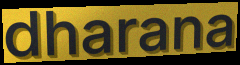
dharana